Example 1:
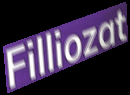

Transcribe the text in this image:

Filliozat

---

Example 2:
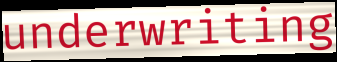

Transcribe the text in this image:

underwriting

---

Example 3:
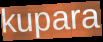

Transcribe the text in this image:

kupara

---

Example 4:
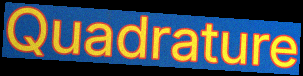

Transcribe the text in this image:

Quadrature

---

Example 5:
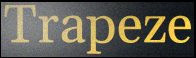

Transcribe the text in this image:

Trapeze